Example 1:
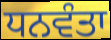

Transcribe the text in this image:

ਧਨਵੰਤਾ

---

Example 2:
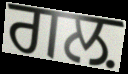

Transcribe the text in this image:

ਗਲ਼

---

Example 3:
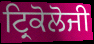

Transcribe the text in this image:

ਟ੍ਰਿਕੋਲੋਜੀ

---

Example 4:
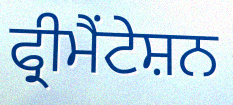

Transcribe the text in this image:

ਫ੍ਰੀਮੈਂਟੇਸ਼ਨ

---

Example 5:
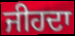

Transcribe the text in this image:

ਜੀਹਦਾ